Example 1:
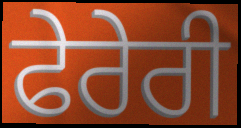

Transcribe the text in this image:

ਫੇਰੇਰੀ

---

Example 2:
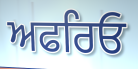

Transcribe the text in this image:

ਅਫਰਿਓ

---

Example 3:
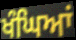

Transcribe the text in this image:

ਖੰਘਿਆਂ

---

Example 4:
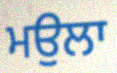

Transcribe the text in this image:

ਮਉਲਾ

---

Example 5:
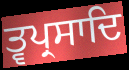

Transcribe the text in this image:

ਤ੍ਵਪ੍ਰਸਾਦਿ